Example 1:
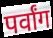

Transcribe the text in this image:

पर्वांग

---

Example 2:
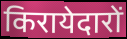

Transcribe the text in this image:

किरायेदारों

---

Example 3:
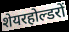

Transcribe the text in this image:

शेयरहोल्डरों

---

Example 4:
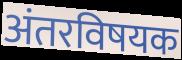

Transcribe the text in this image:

अंतरविषयक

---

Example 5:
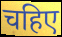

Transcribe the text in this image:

चहिए